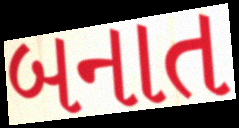
બનાત